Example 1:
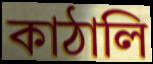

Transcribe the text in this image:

কাঠালি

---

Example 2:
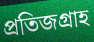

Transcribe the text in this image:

প্রতিজগ্রাহ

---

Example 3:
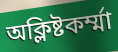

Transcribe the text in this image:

অক্লিষ্টকর্ম্মা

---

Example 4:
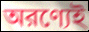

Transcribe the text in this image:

অরণ্যেই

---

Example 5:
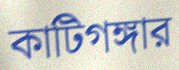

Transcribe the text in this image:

কাটিগঙ্গার